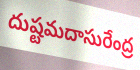
దుష్టమదాసురేంద్ర